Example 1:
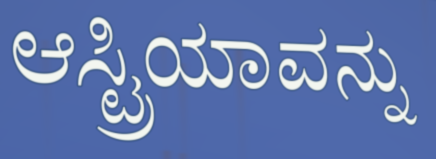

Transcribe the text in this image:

ಆಸ್ಟ್ರಿಯಾವನ್ನು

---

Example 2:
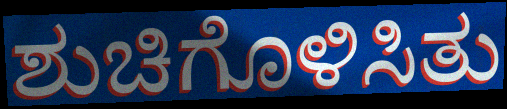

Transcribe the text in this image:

ಶುಚಿಗೊಳಿಸಿತು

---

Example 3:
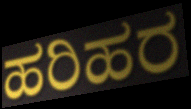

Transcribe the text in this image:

ಹರಿಹರ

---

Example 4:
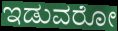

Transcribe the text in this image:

ಇಡುವರೋ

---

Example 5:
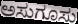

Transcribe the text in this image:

ಅಸುಗೂಸು